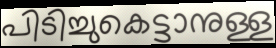
പിടിച്ചുകെട്ടാനുള്ള